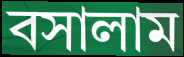
বসালাম